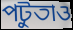
পটুতাও